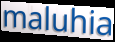
maluhia